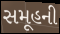
સમૂહની